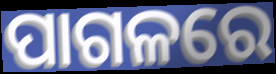
ପାଗଳରେ